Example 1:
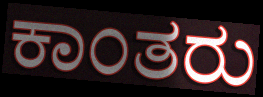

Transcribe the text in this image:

ಕಾಂತರು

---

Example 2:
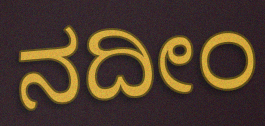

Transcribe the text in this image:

ನದೀಂ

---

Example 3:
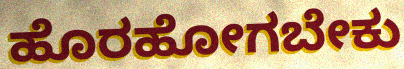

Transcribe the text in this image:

ಹೊರಹೋಗಬೇಕು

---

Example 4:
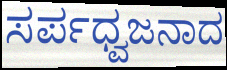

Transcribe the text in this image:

ಸರ್ಪಧ್ವಜನಾದ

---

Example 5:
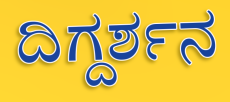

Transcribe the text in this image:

ದಿಗ್ದರ್ಶನ